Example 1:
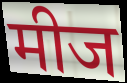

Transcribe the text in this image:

मीज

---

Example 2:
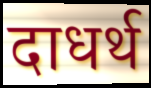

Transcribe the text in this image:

दाधर्थ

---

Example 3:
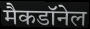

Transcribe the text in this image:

मैकडॉनेल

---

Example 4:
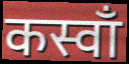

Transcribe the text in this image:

कस्वाँ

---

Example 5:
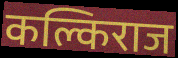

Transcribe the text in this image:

कल्किराज